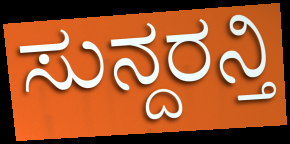
ಸುನ್ದರನ್ತಿ